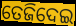
ତେଜିଦେଇ